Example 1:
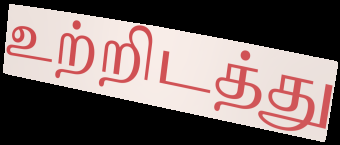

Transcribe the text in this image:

உற்றிடத்து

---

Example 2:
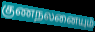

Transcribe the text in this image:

குணநலனையும்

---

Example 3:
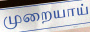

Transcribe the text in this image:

முறையாய்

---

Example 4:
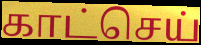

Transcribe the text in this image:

காட்செய்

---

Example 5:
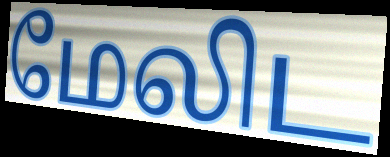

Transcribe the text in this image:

மேலிட